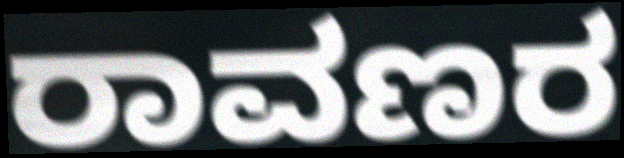
ರಾವಣರ